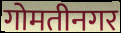
गोमतीनगर